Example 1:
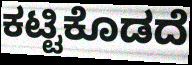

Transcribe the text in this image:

ಕಟ್ಟಿಕೊಡದೆ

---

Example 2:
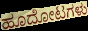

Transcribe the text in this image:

ಹೂದೋಟಗಳು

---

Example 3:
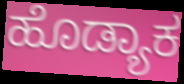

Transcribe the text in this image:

ಹೊಡ್ಯಾಕ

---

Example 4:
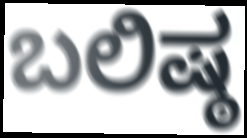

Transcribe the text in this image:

ಬಲಿಷ್ಠ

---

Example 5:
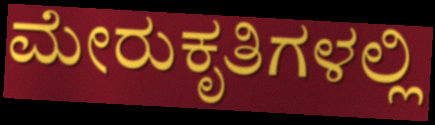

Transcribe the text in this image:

ಮೇರುಕೃತಿಗಳಲ್ಲಿ